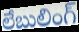
లేబులింగ్